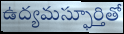
ఉద్యమస్ఫూర్తితో